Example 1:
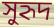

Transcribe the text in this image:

সুহৃদ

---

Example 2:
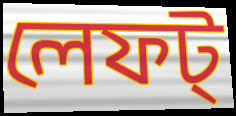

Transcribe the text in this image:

লেফট্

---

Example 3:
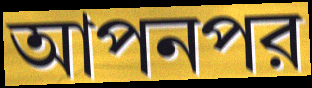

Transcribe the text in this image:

আপনপর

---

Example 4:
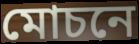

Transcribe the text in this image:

মোচনে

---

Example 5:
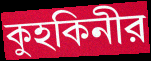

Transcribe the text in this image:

কুহকিনীর